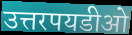
उत्तरपयडीओ